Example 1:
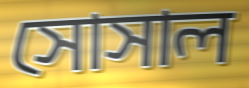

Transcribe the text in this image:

সোসাল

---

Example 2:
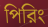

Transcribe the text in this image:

পিরিং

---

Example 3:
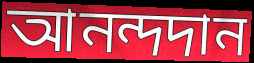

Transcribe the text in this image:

আনন্দদান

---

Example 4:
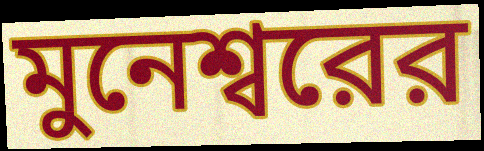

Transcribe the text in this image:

মুনেশ্বরের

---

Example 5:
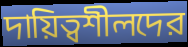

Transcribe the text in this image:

দায়িত্বশীলদের